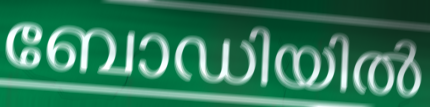
ബോഡിയിൽ